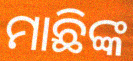
ମାଛିଙ୍କ